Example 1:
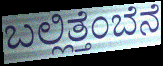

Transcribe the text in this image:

ಬಲ್ಲಿತ್ತೆಂಬೆನೆ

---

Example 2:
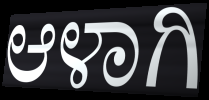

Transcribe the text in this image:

ಆಳಾಗಿ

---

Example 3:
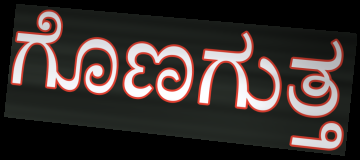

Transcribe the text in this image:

ಗೊಣಗುತ್ತ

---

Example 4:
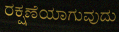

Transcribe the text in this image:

ರಕ್ಷಣೆಯಾಗುವುದು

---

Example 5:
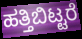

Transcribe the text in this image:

ಹತ್ತಿಬಿಟ್ಟರೆ